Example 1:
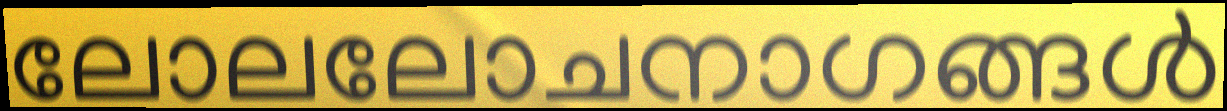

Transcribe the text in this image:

ലോലലോചനാഗങ്ങൾ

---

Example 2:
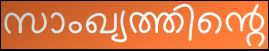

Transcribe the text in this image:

സാംഖ്യത്തിന്റെ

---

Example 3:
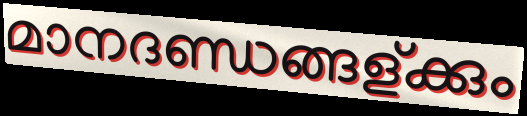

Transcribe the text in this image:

മാനദണ്ഡങ്ങള്ക്കും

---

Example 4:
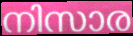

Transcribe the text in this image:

നിസാര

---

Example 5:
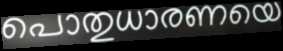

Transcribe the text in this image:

പൊതുധാരണയെ